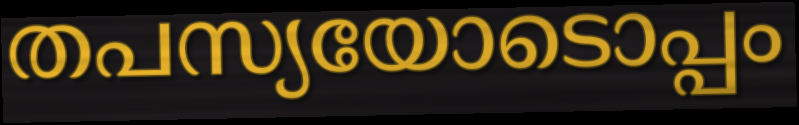
തപസ്യയോടൊപ്പം